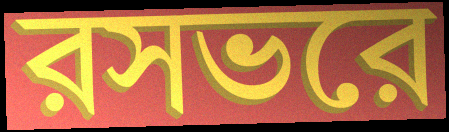
রসভরে